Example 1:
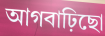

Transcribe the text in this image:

আগবাঢ়িছো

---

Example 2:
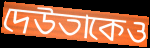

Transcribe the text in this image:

দেউতাকেও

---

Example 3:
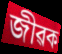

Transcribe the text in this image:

জীৱক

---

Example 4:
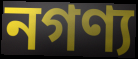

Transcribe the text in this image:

নগণ্য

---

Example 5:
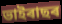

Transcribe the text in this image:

ভাইৰাছৰ